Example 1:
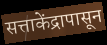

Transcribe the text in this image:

सत्ताकेंद्रापासून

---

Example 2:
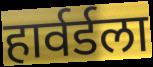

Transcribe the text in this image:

हार्वर्डला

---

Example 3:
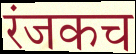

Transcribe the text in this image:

रंजकच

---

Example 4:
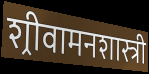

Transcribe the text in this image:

श्रीवामनशास्त्री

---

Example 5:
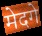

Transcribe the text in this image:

मेदगे